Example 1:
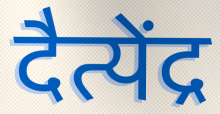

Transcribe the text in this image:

दैत्येंद्र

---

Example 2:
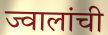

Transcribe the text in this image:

ज्वालांची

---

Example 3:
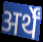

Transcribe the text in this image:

अर्थें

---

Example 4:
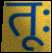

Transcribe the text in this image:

तूः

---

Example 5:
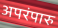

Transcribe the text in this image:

अपरंपारु